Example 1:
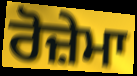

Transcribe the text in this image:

ਰੋਜ਼ੇਮਾ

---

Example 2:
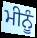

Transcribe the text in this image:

ਮੀਨੂੰ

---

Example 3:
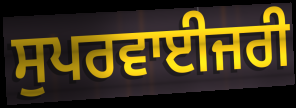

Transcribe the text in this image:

ਸੁਪਰਵਾਈਜਰੀ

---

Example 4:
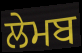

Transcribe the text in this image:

ਲੇਮਬ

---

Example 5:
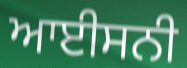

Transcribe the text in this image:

ਆਈਸਨੀ